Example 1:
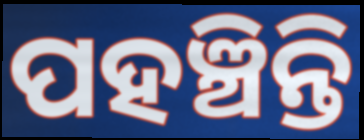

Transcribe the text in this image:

ପହଞ୍ଚିନ୍ତି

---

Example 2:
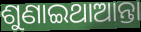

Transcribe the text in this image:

ଶୁଣାଇଥାଆନ୍ତା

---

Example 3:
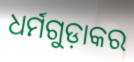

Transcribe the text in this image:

ଧର୍ମଗୁଡ଼ାକର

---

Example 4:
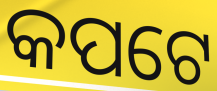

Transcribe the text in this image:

କପଟେ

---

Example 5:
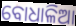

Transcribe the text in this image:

ବୋଧାଳିଆ